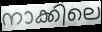
നാക്കിലെ